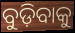
ବୁଡ଼ିବାକୁ